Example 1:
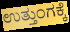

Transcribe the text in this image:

ಉತ್ತುಂಗಕ್ಕೆ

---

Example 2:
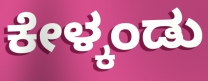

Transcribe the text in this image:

ಕೇಳ್ಕಂಡು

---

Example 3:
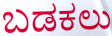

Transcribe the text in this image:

ಬಡಕಲು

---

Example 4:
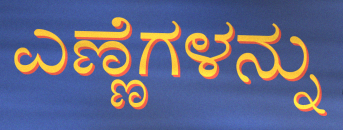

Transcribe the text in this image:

ಎಣ್ಣೆಗಳನ್ನು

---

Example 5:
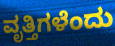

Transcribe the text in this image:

ವೃತ್ತಿಗಳೆಂದು